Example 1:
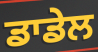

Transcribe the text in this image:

ਡਾਡੇਲ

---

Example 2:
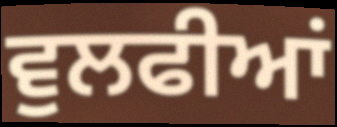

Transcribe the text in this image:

ਵੁਲਫੀਆਂ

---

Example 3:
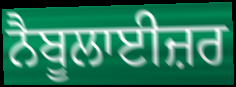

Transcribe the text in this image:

ਨੈਬੂਲਾਈਜ਼ਰ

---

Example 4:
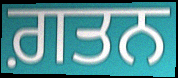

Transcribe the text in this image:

ਗ਼ਤਨ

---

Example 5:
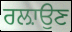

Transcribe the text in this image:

ਰਲ਼ਾਉਣ